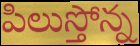
పిలుస్తోన్న